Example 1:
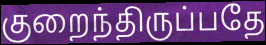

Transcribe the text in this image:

குறைந்திருப்பதே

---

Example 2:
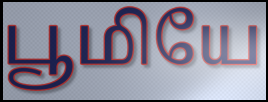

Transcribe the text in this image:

பூமியே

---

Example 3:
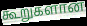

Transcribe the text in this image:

கூறுகளான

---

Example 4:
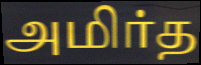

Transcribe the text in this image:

அமிர்த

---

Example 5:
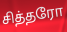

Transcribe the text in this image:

சித்தரோ